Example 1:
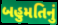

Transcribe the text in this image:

બહુમતિનું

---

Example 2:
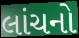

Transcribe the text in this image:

લાંચનો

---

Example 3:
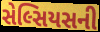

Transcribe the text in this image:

સેલ્સિયસની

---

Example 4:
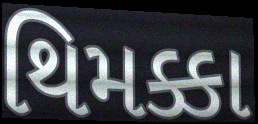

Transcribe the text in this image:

થિમક્કા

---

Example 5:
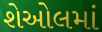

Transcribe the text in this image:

શેઓલમાં